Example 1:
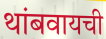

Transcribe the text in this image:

थांबवायची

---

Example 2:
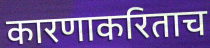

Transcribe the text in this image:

कारणाकरिताच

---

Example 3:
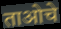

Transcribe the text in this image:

ताओचे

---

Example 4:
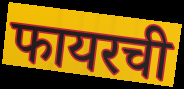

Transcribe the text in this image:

फायरची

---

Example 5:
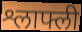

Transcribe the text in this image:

श्लाफ्ली